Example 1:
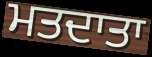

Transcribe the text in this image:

ਮਤਦਾਤਾ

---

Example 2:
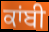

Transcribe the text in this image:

ਕਾਂਬੀ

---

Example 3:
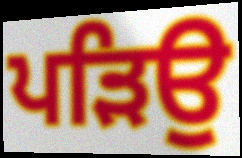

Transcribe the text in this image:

ਪੜਿਉ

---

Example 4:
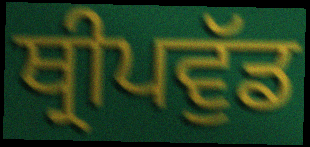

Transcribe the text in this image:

ਥ੍ਰੀਪਵੁੱਡ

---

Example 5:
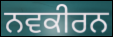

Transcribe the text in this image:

ਨਵਕੀਰਨ